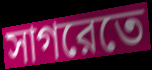
সাগরেতে